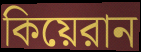
কিয়েরান